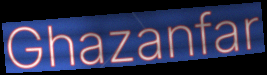
Ghazanfar